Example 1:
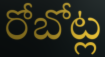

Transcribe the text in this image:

రోబోట్ల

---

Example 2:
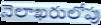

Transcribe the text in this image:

నెలాఖరులోపు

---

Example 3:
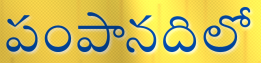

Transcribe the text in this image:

పంపానదిలో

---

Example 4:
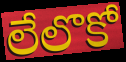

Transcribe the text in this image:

లేలొకో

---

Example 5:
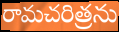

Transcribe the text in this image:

రామచరిత్రను